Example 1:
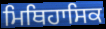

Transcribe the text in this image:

ਮਿਥਿਹਾਸਿਕ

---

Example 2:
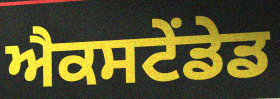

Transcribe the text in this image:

ਐਕਸਟੇਂਡੇਡ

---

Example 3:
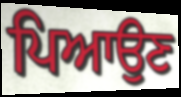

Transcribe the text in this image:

ਪਿਆਉਣ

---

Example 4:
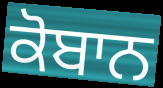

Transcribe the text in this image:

ਕੋਬਾਨ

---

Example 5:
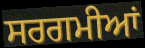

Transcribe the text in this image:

ਸਰਗਮੀਆਂ